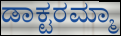
ಡಾಕ್ಟರಮ್ಮಾ